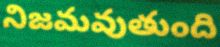
నిజమవుతుంది